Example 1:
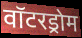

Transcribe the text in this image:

वॉटरड्रोम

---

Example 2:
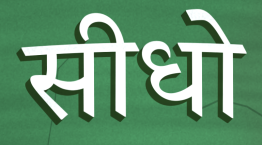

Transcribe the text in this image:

सीधो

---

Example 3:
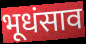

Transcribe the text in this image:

भूधंसाव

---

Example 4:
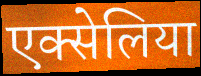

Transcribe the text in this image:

एक्सेलिया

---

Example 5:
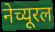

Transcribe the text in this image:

नेच्यूरल